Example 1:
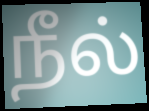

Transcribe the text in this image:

நீல்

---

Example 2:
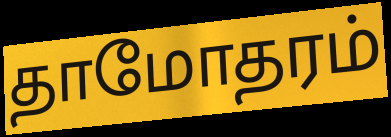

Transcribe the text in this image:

தாமோதரம்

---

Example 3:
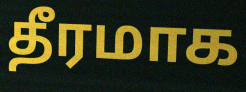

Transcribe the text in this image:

தீரமாக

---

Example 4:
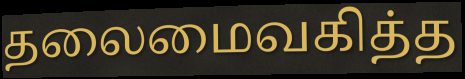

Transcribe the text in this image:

தலைமைவகித்த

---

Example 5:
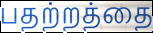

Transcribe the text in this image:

பதற்றத்தை